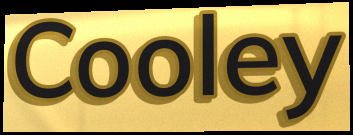
Cooley